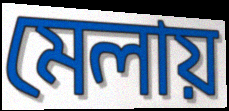
মেলায়